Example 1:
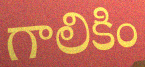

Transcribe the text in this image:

గాలికిం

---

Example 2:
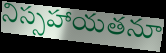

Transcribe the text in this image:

నిస్సహాయతనూ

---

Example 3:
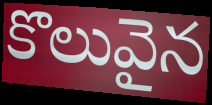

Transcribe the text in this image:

కొలువైన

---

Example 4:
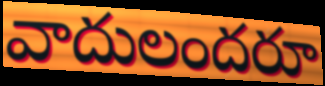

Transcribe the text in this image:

వాదులందరూ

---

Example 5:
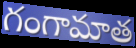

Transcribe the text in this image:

గంగామాత